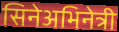
सिनेअभिनेत्री